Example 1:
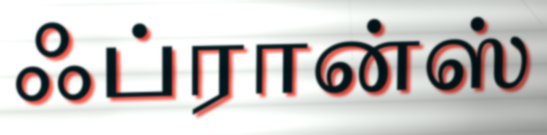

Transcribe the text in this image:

ஃப்ரான்ஸ்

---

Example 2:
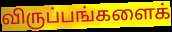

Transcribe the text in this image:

விருப்பங்களைக்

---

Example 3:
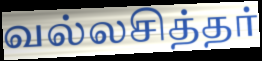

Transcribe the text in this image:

வல்லசித்தர்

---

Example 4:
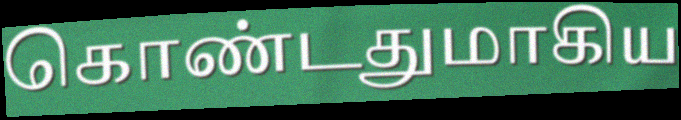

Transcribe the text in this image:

கொண்டதுமாகிய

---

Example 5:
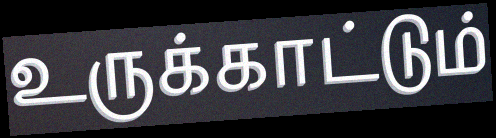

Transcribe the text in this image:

உருக்காட்டும்